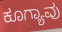
ಕೂಗ್ಯಾವು